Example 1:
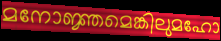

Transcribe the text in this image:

മനോജ്ഞമെങ്കിലുമഹോ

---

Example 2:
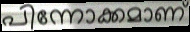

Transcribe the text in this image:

പിന്നോക്കമാണ്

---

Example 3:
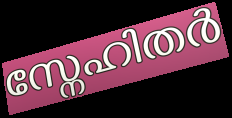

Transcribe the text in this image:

സ്നേഹിതർ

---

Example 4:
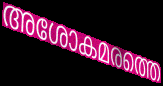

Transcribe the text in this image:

അശോകമരത്തെ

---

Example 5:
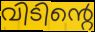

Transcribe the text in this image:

വിടിന്റെ